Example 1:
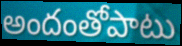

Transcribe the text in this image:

అందంతోపాటు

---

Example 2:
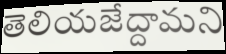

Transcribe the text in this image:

తెలియజేద్దామని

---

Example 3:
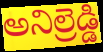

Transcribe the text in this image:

అనిల్రెడ్డి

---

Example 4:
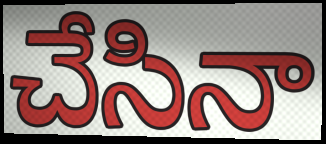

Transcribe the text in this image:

చేసినా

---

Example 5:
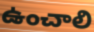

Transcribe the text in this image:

ఉంచాలి